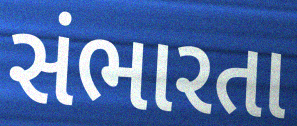
સંભારતા